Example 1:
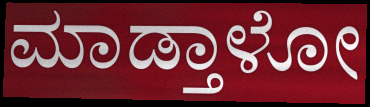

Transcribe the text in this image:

ಮಾಡ್ತಾಳೋ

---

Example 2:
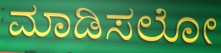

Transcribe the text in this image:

ಮಾಡಿಸಲೋ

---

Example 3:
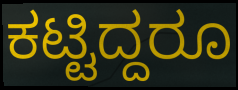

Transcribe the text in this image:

ಕಟ್ಟಿದ್ದರೂ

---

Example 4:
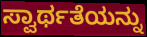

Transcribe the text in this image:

ಸ್ವಾರ್ಥತೆಯನ್ನು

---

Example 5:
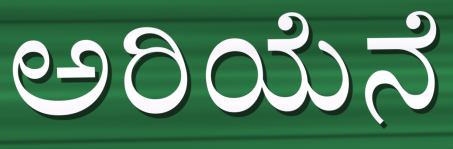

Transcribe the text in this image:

ಅರಿಯೆನೆ